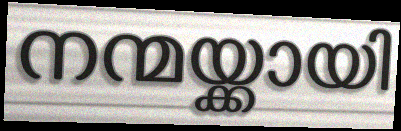
നന്മയ്ക്കായി